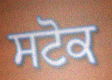
ਸਟੋਕ